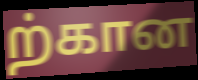
ற்கான